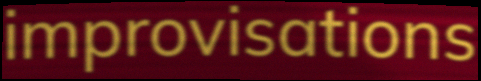
improvisations